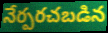
నేర్పరచబడిన